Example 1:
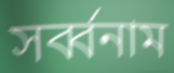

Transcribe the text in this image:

সৰ্ব্বনাম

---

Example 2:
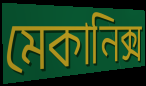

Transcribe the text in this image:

মেকানিক্স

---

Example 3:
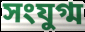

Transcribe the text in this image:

সংযুগ্ম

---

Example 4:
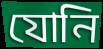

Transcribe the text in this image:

যোনি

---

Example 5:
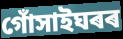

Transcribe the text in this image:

গোঁসাইঘৰৰ